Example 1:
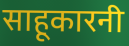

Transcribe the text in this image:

साहूकारनी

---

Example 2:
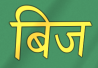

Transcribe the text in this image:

बिज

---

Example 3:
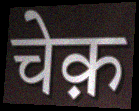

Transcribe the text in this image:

चेक़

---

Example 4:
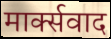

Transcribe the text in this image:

मार्क्सवाद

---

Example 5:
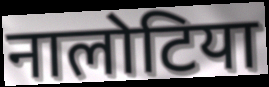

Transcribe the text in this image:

नालोटिया